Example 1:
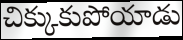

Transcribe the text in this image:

చిక్కుకుపోయాడు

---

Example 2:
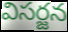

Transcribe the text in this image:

విసర్జన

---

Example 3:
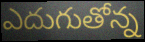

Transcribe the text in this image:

ఎదుగుతోన్న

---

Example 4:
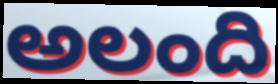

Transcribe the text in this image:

అలంది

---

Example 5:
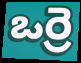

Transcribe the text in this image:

ఒర్రె